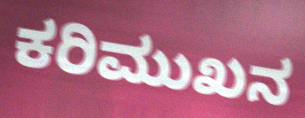
ಕರಿಮುಖನ